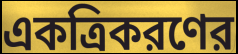
একত্রিকরণের